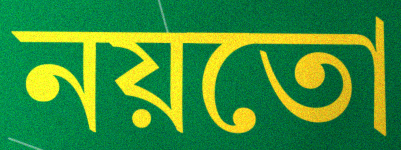
নয়তো